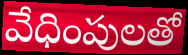
వేధింపులతో